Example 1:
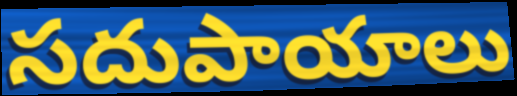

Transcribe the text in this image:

సదుపాయాలు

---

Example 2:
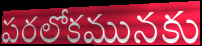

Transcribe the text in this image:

పరలోకమునకు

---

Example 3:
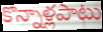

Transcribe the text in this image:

కొన్నాళ్లపాటు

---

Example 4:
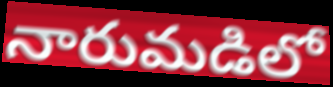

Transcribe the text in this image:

నారుమడిలో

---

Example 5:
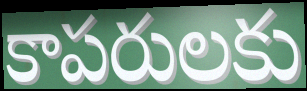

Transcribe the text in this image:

కాపరులకు